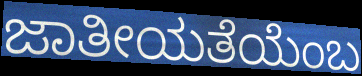
ಜಾತೀಯತೆಯೆಂಬ